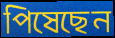
পিষেছেন